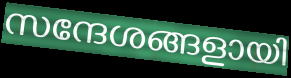
സന്ദേശങ്ങളായി